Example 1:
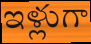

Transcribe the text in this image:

ఇళ్లుగా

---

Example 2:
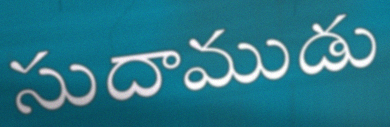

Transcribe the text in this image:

సుదాముడు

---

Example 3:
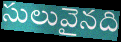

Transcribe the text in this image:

సులువైనది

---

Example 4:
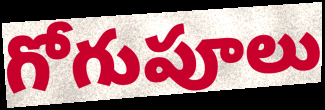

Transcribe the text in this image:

గోగుపూలు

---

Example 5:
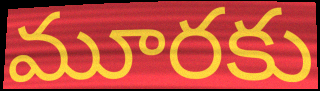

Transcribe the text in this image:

మూరకు